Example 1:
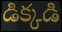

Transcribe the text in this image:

డిక్కడి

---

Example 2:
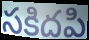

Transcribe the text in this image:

సకిదపి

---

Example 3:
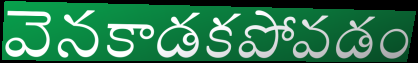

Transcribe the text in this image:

వెనకాడకపోవడం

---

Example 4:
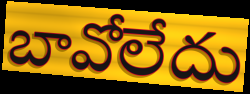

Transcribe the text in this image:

బావోలేదు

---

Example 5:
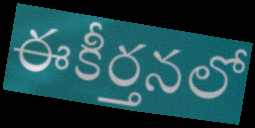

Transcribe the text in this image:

ఈకీర్తనలో